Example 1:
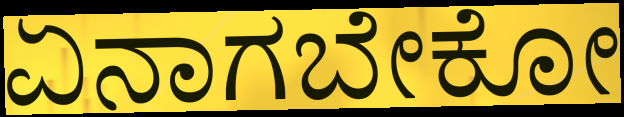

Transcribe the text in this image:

ಏನಾಗಬೇಕೋ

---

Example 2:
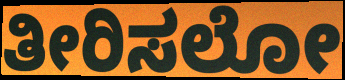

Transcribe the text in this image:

ತೀರಿಸಲೋ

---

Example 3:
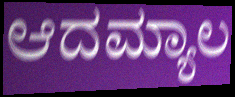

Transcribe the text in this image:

ಆದಮ್ಯಾಲ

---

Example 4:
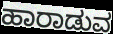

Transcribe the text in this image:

ಹಾರಾಡುವ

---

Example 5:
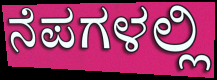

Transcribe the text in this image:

ನೆಪಗಳಲ್ಲಿ